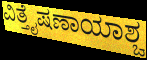
ವಿತ್ತೈಷಣಾಯಾಶ್ಚ